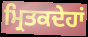
ਮ੍ਰਿਤਕਦੇਹਾਂ